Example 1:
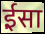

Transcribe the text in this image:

ई़सा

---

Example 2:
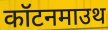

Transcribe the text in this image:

कॉटनमाउथ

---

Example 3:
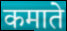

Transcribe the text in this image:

कमाते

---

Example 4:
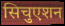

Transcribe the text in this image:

सिचुएशन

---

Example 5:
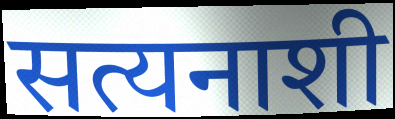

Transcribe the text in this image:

सत्यनाशी